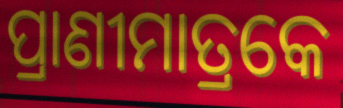
ପ୍ରାଣୀମାତ୍ରକେ